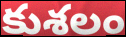
కుశలం